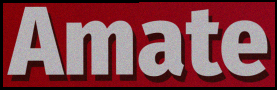
Amate